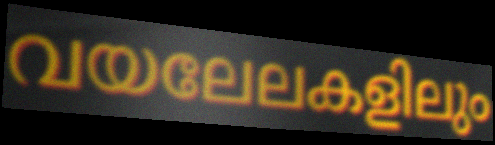
വയലേലകളിലും